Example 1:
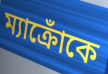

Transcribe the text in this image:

ম্যাক্রোঁকে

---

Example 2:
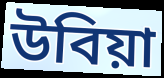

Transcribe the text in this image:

উবিয়া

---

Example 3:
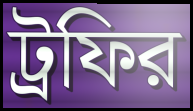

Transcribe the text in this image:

ট্রফির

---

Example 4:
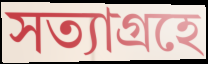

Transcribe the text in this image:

সত্যাগ্রহে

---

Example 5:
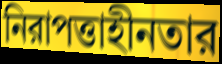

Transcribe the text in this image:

নিরাপত্তাহীনতার